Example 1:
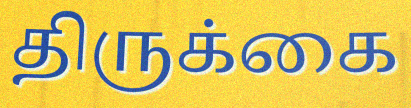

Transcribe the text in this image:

திருக்கை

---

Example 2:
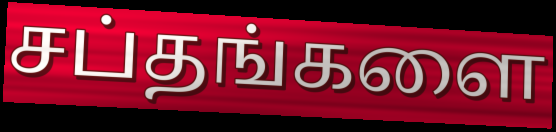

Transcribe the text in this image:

சப்தங்களை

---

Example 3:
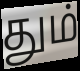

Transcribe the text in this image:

தும்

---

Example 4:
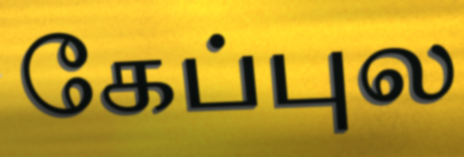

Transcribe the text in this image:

கேப்புல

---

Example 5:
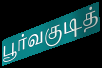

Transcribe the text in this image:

பூர்வகுடித்